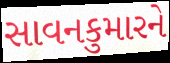
સાવનકુમારને